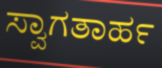
ಸ್ವಾಗತಾರ್ಹ